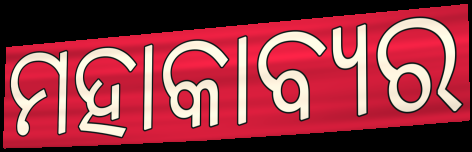
ମହାକାବ୍ୟର